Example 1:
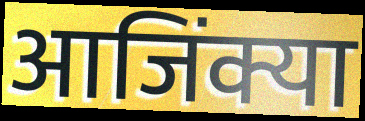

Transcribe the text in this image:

आजिंक्या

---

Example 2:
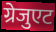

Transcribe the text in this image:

ग्रेजुएट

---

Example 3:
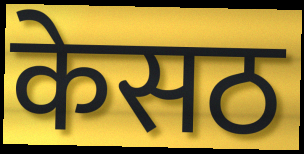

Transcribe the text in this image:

केसठ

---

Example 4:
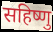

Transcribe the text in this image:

सहिष्णु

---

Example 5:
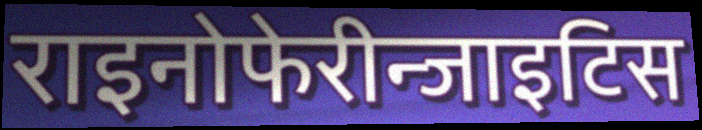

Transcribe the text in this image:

राइनोफेरीन्जाइटिस